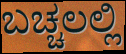
ಬಚ್ಚಲಲ್ಲಿ